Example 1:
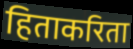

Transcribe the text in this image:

हिताकरिता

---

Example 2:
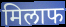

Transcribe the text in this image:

मिलाफ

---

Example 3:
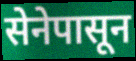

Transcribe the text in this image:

सेनेपासून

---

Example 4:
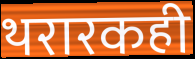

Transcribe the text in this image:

थरारकही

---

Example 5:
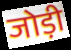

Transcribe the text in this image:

जोड़ी